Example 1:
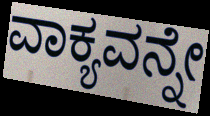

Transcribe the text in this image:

ವಾಕ್ಯವನ್ನೇ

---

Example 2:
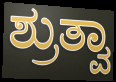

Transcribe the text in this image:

ಶ್ರುತ್ವಾ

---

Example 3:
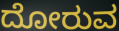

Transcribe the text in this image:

ದೋರುವ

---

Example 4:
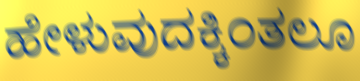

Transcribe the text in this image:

ಹೇಳುವುದಕ್ಕಿಂತಲೂ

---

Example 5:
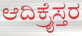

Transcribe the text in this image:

ಆದಿಕ್ರೈಸ್ತರ